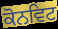
ਕੋਨਵਿਟ